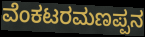
ವೆಂಕಟರಮಣಪ್ಪನ